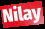
Nilay